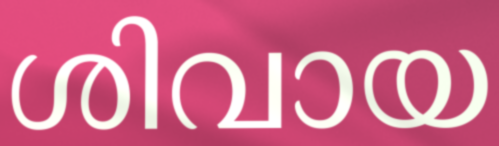
ശിവായ